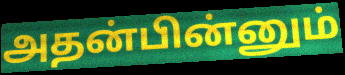
அதன்பின்னும்